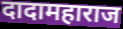
दादामहाराज